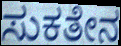
ಸುಕತೇನ